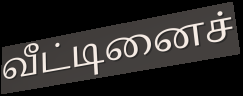
வீட்டினைச்